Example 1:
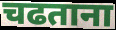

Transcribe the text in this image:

चढताना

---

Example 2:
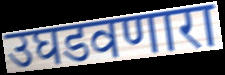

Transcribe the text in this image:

उघडवणारा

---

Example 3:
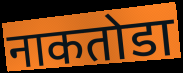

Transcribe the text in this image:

नाकतोडा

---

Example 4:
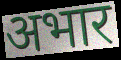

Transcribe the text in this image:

अभार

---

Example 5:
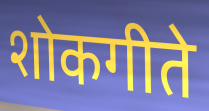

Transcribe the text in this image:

शोकगीते